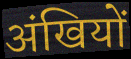
अंखियों